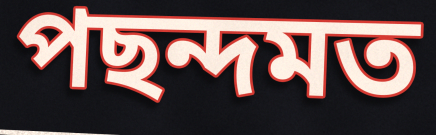
পছন্দমত